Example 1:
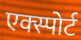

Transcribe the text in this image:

एक्‍स्पोर्ट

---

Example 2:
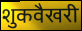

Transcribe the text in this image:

शुकवैखरी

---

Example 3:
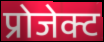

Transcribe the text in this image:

प्रोजेक्ट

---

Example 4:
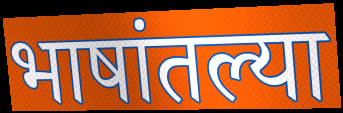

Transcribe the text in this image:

भाषांतल्या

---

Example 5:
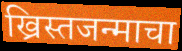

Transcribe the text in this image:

ख्रिस्तजन्माचा